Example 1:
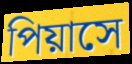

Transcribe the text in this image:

পিয়াসে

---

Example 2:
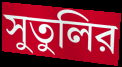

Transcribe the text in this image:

সুতুলির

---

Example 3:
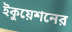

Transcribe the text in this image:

ইকুয়েশনের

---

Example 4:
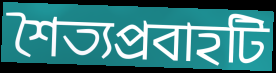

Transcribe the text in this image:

শৈত্যপ্রবাহটি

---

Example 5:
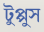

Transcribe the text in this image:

টুপ্পুস